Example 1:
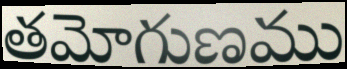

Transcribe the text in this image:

తమోగుణము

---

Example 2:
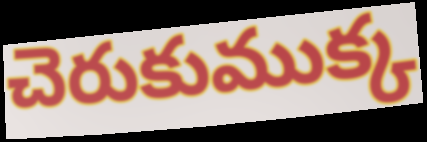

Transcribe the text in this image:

చెరుకుముక్క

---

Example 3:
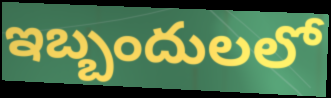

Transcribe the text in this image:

ఇబ్బందులలో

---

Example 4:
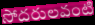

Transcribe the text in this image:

సోదరులవంటి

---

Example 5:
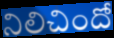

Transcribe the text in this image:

నిలిచిందో